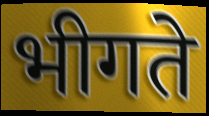
भीगते